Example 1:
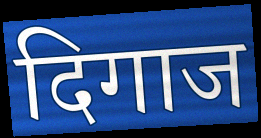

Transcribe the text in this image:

दिगाज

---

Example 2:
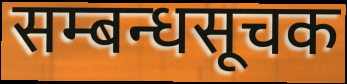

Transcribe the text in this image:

सम्बन्धसूचक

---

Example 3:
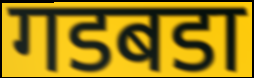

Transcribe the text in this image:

गडबडा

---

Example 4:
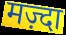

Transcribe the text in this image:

मज़्दा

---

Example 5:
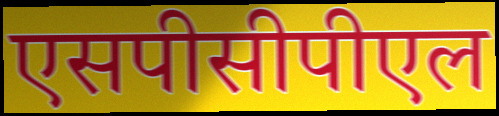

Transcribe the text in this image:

एसपीसीपीएल